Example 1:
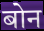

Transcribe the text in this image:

बोन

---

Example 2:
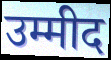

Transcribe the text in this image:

उम्मीद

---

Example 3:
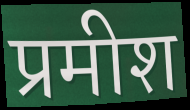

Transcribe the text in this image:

प्रमीश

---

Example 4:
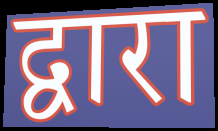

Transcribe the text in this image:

द्वारा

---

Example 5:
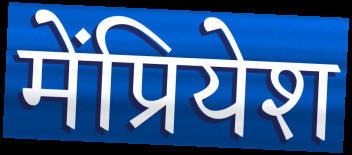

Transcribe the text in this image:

मेंप्रियेश